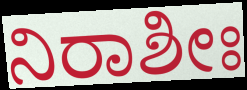
ನಿರಾಶೀಃ